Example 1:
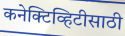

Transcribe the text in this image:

कनेक्टिव्हिटीसाठी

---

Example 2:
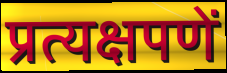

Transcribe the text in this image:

प्रत्यक्षपणें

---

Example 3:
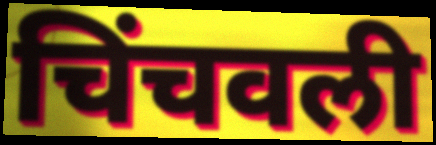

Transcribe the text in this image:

चिंचवली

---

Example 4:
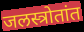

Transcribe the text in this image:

जलस्त्रोतांत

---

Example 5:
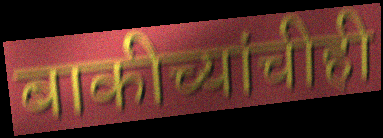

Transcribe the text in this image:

बाकीच्यांचीही